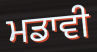
ਮਡਾਵੀ